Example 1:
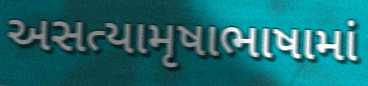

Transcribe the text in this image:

અસત્યામૃષાભાષામાં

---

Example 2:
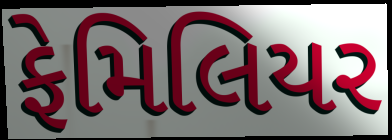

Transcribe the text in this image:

ફેમિલિયર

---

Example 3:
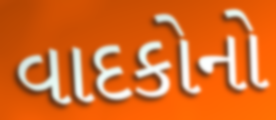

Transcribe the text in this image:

વાદકોનો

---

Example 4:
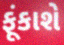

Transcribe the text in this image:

ફૂંકાશે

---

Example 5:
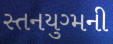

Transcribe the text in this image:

સ્તનયુગ્મની